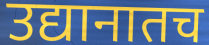
उद्यानातच